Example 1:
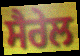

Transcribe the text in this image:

ਸੈਰੇਲ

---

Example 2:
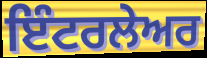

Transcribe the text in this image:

ਇੰਟਰਲੇਅਰ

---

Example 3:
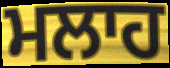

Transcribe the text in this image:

ਮਲਾਹ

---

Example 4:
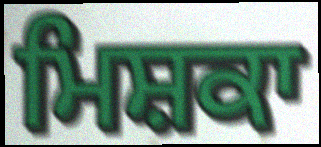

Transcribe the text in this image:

ਮਿਸ਼ਕਾ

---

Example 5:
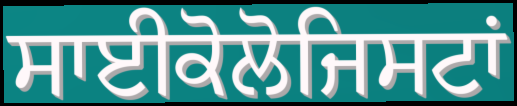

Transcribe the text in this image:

ਸਾਈਕੋਲੋਜਿਸਟਾਂ